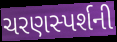
ચરણસ્પર્શની